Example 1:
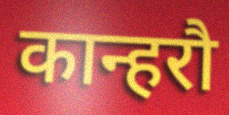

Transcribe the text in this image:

कान्हरौ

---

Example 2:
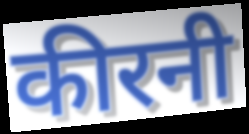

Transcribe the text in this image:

कीरनी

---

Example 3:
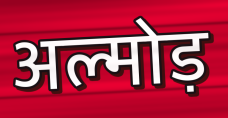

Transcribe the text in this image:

अल्मोड़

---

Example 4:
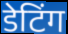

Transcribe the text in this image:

डेटिंग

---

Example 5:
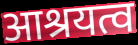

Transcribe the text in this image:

आश्रयत्व